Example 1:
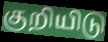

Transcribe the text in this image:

குறியிடு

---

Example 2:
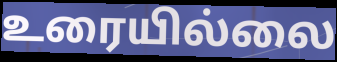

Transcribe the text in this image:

உரையில்லை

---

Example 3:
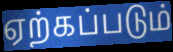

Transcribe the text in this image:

ஏற்கப்படும்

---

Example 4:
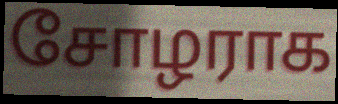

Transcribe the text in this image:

சோழராக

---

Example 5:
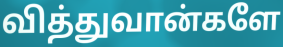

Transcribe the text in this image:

வித்துவான்களே